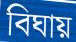
বিঘায়